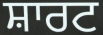
ਸ਼ਾਰਟ